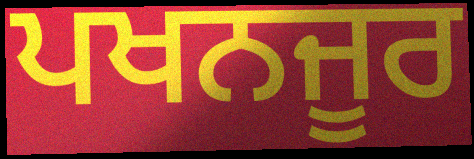
ਪਖਨਜੂਰ